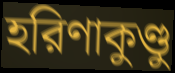
হরিণাকুণ্ডু